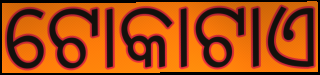
ଟୋକାଟାଏ